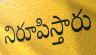
నిరూపిస్తారు